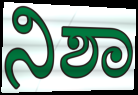
ನಿಶಾ